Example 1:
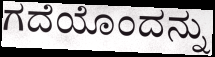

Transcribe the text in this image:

ಗದೆಯೊಂದನ್ನು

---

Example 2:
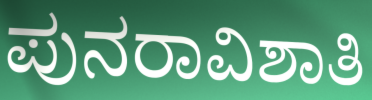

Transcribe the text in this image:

ಪುನರಾವಿಶಾತಿ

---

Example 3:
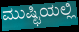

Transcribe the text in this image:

ಮುಷ್ಟಿಯಲ್ಲಿ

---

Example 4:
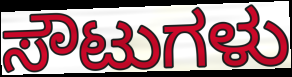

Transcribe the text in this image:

ಸೌಟುಗಳು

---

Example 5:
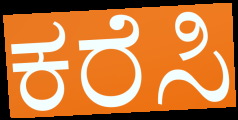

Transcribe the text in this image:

ಕರೆಸಿ